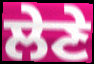
ਲੇਣੇ